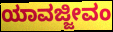
ಯಾವಜ್ಜೀವಂ